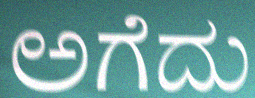
ಅಗೆದು